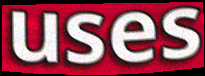
uses